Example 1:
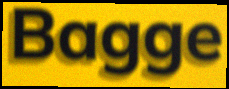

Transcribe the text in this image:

Bagge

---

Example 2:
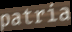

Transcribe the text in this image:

patria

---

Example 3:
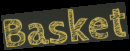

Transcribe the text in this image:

Basket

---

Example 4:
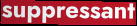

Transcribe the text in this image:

suppressant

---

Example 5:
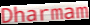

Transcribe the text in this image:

Dharmam